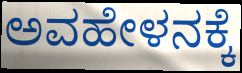
ಅವಹೇಳನಕ್ಕೆ